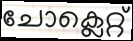
ചോക്ലെറ്റ്